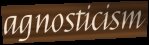
agnosticism